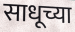
साधूच्या